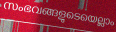
സംഭവങ്ങളുടെയെല്ലാം